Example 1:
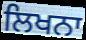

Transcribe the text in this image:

ਲਿਖਨਾ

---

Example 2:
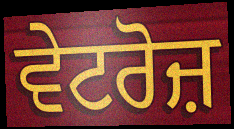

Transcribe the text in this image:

ਵੇਟਰੋਜ਼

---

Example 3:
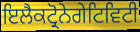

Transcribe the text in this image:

ਇਲੈਕਟ੍ਰੋਨੇਗੇਟਿਵਿਟੀ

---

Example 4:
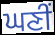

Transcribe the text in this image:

ਘਣੀਂ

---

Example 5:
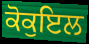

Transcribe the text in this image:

ਕੋਕੁਇਲ